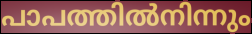
പാപത്തിൽനിന്നും